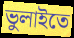
ভুলাইতে